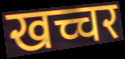
खच्‍चर